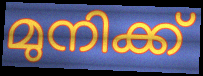
മുനിക്ക്